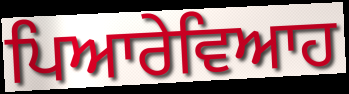
ਪਿਆਰੇਵਿਆਹ